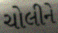
ચોલીને